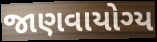
જાણવાયોગ્ય